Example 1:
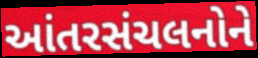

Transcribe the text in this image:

આંતરસંચલનોને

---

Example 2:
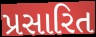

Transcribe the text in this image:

પ્રસારિત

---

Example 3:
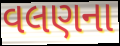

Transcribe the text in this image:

વલણના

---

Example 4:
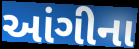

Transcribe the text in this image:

આંગીના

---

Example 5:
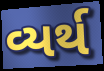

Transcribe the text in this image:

વ્યર્થ